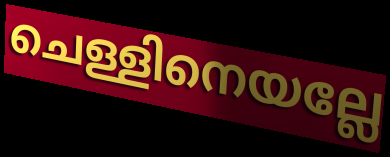
ചെള്ളിനെയല്ലേ